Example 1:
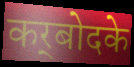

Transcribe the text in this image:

कर्बोदके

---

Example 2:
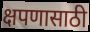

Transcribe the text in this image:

क्षपणासाठी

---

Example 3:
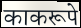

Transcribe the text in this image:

काकरूपे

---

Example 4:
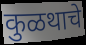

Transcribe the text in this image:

कुळथाचे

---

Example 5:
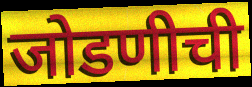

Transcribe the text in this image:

जोडणीची